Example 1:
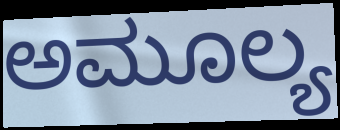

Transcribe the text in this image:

ಅಮೂಲ್ಯ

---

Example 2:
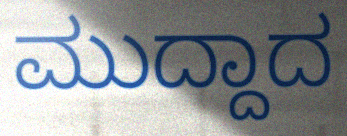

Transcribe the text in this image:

ಮುದ್ದಾದ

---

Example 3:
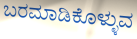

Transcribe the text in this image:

ಬರಮಾಡಿಕೊಳ್ಳುವ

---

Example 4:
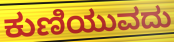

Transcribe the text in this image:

ಕುಣಿಯುವದು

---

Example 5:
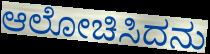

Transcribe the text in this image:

ಆಲೋಚಿಸಿದನು